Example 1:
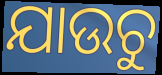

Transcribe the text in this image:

ଯାଉଚୁ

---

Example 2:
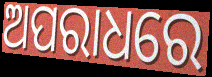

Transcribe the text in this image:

ଅପରାଧରେ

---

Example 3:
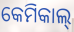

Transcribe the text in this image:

କେମିକାଲ୍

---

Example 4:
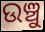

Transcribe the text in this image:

ଉଞ୍ଚୁ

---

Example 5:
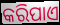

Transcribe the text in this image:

କରିପାଏ